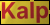
Kalp